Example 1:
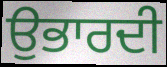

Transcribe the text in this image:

ਉਭਾਰਦੀ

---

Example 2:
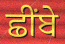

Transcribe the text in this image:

ਛੀਂਬੇ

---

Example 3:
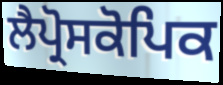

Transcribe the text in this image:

ਲੈਪ੍ਰੋਸਕੋਪਿਕ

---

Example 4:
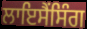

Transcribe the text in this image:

ਲਾਇਸੈਂਸਿੰਗ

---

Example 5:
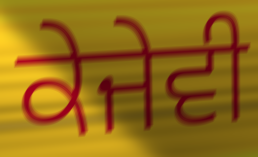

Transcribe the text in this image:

ਕੇਜੇਵੀ